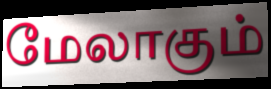
மேலாகும்